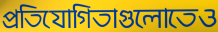
প্রতিযোগিতাগুলোতেও